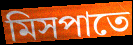
মিসপাতে